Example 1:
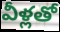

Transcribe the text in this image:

వీళ్లతో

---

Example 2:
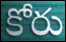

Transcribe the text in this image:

కోరు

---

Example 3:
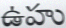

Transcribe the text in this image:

ఉహు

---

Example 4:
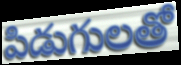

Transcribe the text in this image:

పిడుగులతో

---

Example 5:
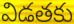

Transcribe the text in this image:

విడతకు